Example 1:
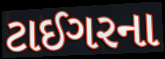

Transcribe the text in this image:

ટાઈગરના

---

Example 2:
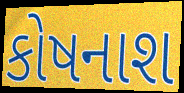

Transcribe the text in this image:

કોષનાશ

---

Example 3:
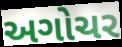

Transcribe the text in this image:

અગોચર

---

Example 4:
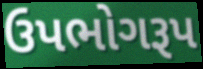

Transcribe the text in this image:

ઉપભોગરૂપ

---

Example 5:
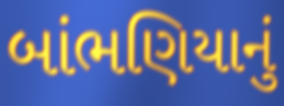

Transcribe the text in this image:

બાંભણિયાનું